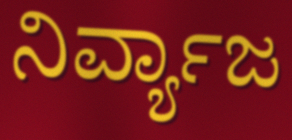
ನಿರ್ವ್ಯಾಜ